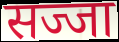
सज्जा